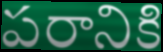
పరానికి